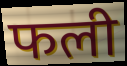
फली